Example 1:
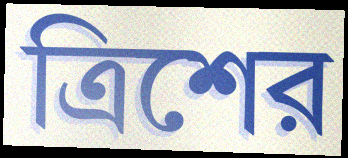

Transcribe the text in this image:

ত্রিশের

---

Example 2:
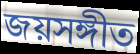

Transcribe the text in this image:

জয়সঙ্গীত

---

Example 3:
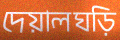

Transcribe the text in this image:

দেয়ালঘড়ি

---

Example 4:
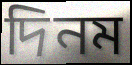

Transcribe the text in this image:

দিনম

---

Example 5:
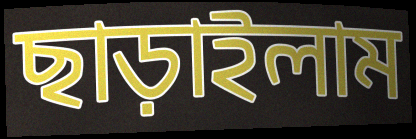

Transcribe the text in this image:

ছাড়াইলাম